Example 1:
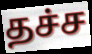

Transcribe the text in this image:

தச்ச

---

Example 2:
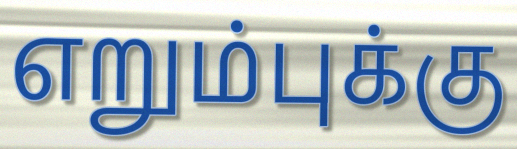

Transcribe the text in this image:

எறும்புக்கு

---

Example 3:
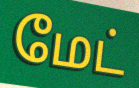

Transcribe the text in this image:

மேட்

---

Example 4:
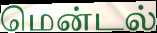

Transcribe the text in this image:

மென்டல்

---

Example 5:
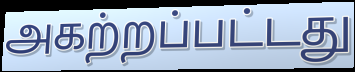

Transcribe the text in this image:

அகற்றப்பட்டது